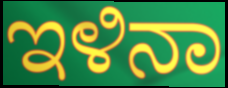
ಇಳಿನಾ